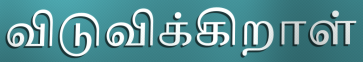
விடுவிக்கிறாள்